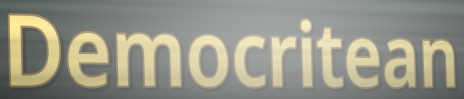
Democritean